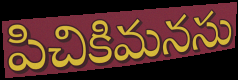
పిచికిమనసు